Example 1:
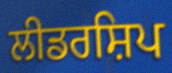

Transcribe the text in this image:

ਲੀਡਰਸ਼ਿਪ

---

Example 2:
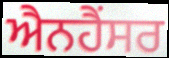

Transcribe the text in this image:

ਐਨਹੈਂਸਰ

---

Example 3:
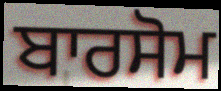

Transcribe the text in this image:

ਬਾਰਸੋਮ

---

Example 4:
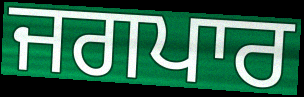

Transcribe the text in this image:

ਜਗਪਾਰ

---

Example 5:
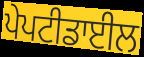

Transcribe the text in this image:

ਪੇਪਟੀਡਾਈਲ